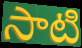
సాటి